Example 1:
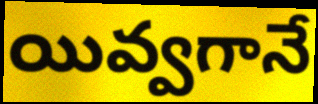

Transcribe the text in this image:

యివ్వగానే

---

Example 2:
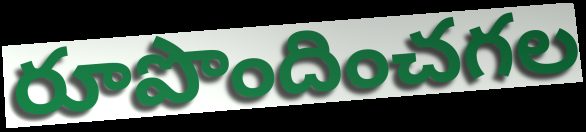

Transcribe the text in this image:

రూపొందించగల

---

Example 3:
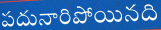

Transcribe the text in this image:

పదునారిపోయినది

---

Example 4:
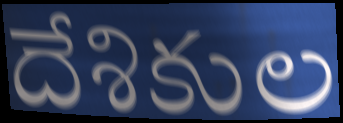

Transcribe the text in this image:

దేశికుల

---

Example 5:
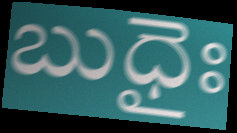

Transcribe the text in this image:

బుధైః